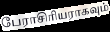
பேராசிரியராகவும்